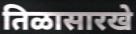
तिळासारखे